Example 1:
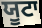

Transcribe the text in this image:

ਯੂਟਾ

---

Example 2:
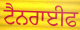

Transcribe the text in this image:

ਟੈਨਰਾਈਫ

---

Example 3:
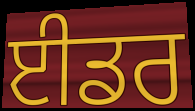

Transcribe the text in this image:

ਈਡਰ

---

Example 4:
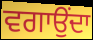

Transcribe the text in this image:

ਵਗਾਉਂਦਾ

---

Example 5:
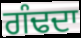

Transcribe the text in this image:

ਗੰਢਦਾ